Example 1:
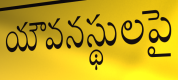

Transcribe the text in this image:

యౌవనస్థులపై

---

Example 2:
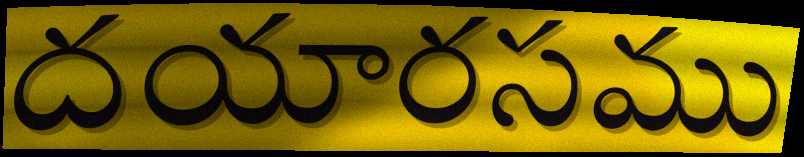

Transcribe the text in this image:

దయారసము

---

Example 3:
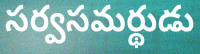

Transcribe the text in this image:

సర్వసమర్థుడు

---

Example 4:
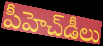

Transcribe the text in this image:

పీహెచ్‌డీలు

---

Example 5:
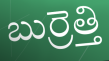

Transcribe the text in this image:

బుర్రెత్తి